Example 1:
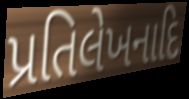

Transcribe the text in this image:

પ્રતિલેખનાદિ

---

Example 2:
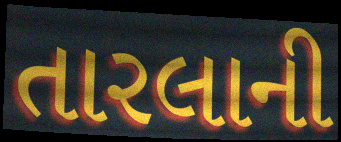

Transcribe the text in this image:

તારલાની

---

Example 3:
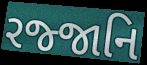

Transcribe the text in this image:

રજ્જાનિ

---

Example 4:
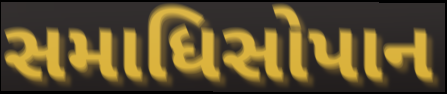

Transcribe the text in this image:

સમાધિસોપાન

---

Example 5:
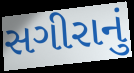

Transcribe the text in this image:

સગીરાનું